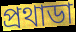
প্রথাডা